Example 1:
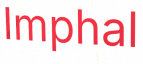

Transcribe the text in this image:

Imphal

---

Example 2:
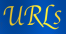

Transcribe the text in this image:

URLs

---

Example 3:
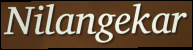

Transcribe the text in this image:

Nilangekar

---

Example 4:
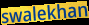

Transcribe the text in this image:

swalekhan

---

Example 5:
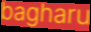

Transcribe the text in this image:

bagharu